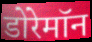
डोरेमॉन